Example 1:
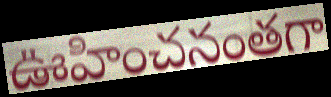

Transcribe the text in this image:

ఊహించనంతగా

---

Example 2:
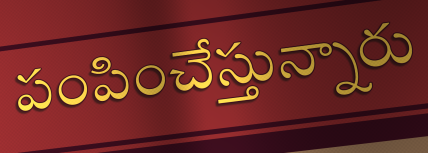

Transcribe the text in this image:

పంపించేస్తున్నారు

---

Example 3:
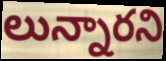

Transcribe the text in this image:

లున్నారని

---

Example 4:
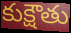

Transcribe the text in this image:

కుక్షౌతు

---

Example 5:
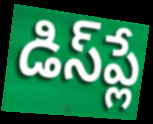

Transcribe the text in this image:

డిస్‌ప్లే